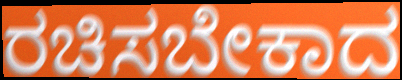
ರಚಿಸಬೇಕಾದ